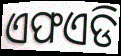
ଏଫଏଡି